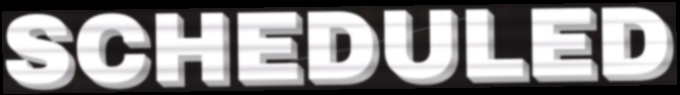
SCHEDULED